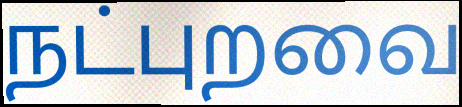
நட்புறவை